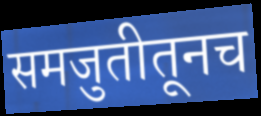
समजुतीतूनच